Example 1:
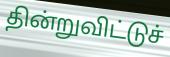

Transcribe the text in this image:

தின்றுவிட்டுச்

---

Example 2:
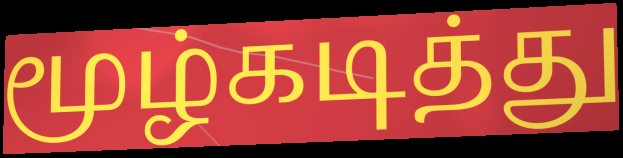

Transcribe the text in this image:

மூழ்கடித்து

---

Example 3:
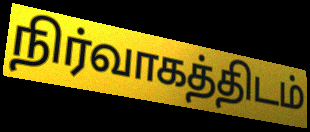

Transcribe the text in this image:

நிர்வாகத்திடம்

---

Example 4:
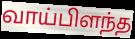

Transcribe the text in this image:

வாய்பிளந்த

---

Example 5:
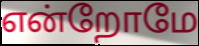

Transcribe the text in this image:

என்றோமே